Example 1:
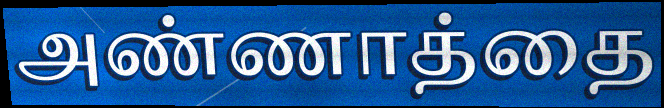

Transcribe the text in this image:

அண்ணாத்தை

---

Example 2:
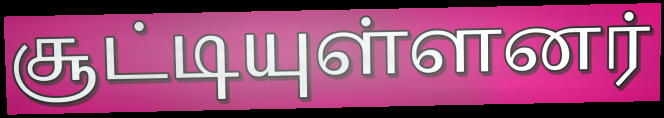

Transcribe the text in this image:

சூட்டியுள்ளனர்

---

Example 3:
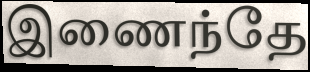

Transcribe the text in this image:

இணைந்தே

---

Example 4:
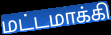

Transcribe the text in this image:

மட்டமாக்கி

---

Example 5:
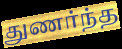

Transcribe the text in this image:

துணர்ந்த